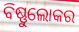
ବିଷ୍ଣୁଲୋକର